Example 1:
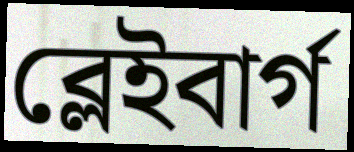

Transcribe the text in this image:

ব্লেইবার্গ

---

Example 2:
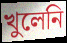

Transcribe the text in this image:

খুলেনি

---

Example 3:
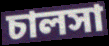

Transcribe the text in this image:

চালসা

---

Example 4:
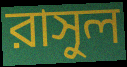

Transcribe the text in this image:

রাসুল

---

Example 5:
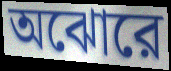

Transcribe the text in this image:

অঝোরে